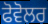
ਫੋਵੋਲਰ